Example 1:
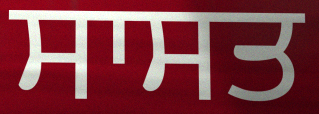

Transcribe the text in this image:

ਸਾਸਤ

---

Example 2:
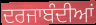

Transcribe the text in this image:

ਦਰਜਾਬੰਦੀਆਂ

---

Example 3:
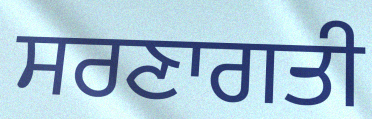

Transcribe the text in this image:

ਸਰਣਾਗਤੀ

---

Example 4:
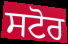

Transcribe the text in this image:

ਸਟੋਰ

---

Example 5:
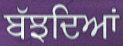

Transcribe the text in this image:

ਬੱਝਦਿਆਂ